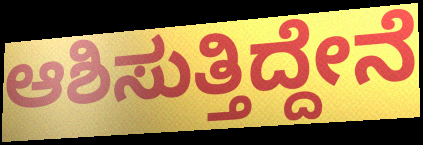
ಆಶಿಸುತ್ತಿದ್ದೇನೆ